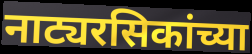
नाट्यरसिकांच्या